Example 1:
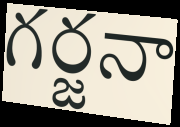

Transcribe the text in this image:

గర్జనా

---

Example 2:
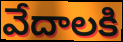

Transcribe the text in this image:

వేదాలకి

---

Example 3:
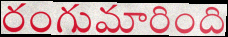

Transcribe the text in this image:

రంగుమారింది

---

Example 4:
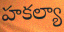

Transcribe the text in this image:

హకల్యా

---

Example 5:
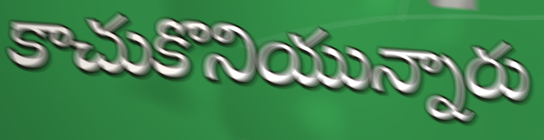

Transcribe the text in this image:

కాచుకొనియున్నారు